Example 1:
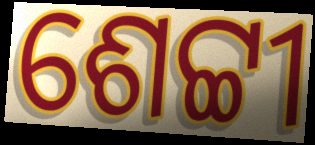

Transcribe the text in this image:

ଶେଟ୍ଟୀ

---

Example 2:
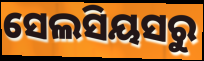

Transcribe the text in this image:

ସେଲସିୟସରୁ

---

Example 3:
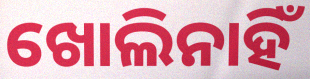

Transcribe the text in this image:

ଖୋଲିନାହିଁ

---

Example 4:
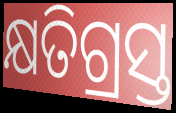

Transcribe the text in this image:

କ୍ଷତିଗ୍ରସ୍ତ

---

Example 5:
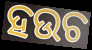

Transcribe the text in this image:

ହଉଚ